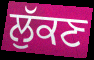
ਲੁੱਕਣ